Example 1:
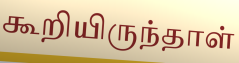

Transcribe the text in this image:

கூறியிருந்தாள்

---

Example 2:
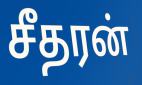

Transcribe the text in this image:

சீதரன்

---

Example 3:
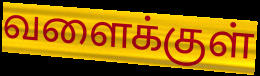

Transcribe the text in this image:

வளைக்குள்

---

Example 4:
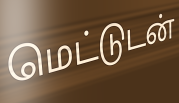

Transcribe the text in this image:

மெட்டுடன்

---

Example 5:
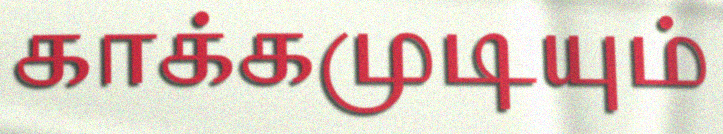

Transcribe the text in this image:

காக்கமுடியும்